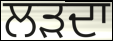
ਲੜਦਾ